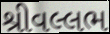
શ્રીવલ્લભ